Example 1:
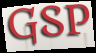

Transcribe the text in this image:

GSP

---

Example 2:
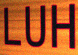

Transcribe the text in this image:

LUH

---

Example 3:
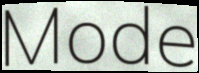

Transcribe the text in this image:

Mode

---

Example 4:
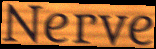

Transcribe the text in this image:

Nerve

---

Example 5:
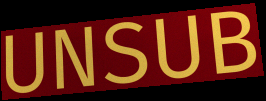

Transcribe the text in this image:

UNSUB